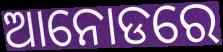
ଆନୋଡରେ